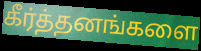
கீர்த்தனங்களை